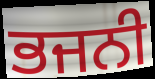
ਭਜਨੀ